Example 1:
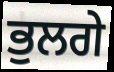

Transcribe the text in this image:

ਭੁਲਗੇ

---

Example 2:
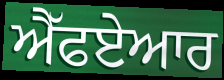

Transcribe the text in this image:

ਐੱਫਏਆਰ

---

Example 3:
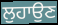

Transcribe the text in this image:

ਲੁਹਾਉਣ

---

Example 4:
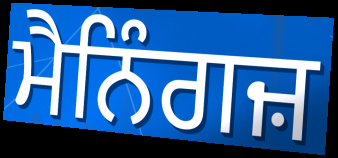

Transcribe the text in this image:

ਮੈਨਿੰਗਜ਼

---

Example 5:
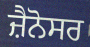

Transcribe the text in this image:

ਜ਼ੈਨੋਸਰ